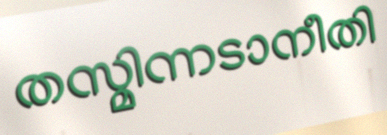
തസ്മിന്നടാനീതി